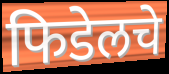
फिडेलचे